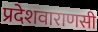
प्रदेशवाराणसी